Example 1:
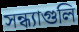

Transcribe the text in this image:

সন্ধ্যাগুলি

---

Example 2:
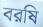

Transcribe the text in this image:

বরষি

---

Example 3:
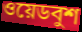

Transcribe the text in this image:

ওয়েডবুশ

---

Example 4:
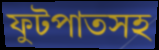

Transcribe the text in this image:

ফুটপাতসহ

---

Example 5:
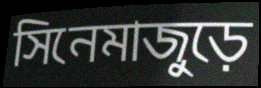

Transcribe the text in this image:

সিনেমাজুড়ে